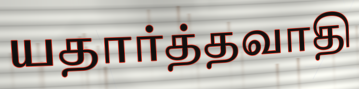
யதார்த்தவாதி